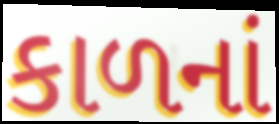
કાળનાં